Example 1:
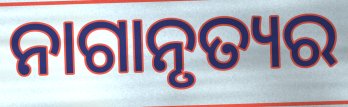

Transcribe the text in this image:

ନାଗାନୃତ୍ୟର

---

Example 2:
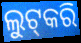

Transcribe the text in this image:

ଲୁଟ୍‍କରି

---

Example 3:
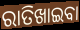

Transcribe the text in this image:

ରାତିଖାଇବା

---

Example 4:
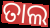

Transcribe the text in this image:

ତାଲ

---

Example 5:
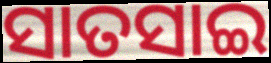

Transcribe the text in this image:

ସାତସାଇ